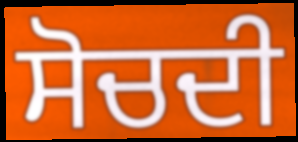
ਸੋਚਦੀ